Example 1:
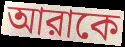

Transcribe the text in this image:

আরাকে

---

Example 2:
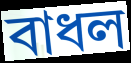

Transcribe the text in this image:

বাধল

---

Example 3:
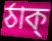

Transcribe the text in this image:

ঠাক্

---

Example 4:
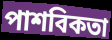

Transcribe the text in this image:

পাশবিকতা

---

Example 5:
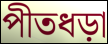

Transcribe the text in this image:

পীতধড়া